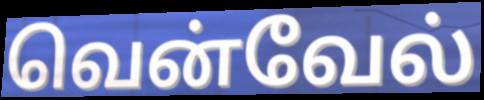
வென்வேல்